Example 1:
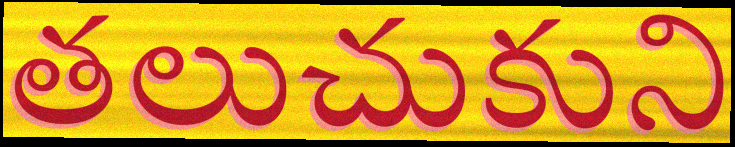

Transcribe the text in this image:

తలుచుకుని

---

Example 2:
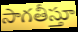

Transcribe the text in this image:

సాగతీస్తూ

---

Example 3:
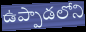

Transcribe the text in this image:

ఉప్పాడలోని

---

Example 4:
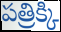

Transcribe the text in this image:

పత్రిక్కి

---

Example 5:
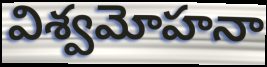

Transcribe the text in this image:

విశ్వమోహనా